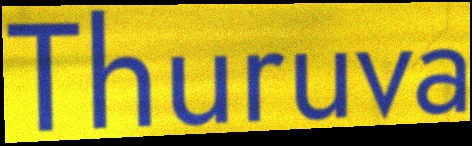
Thuruva